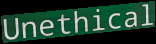
Unethical